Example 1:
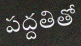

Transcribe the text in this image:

పద్దతితో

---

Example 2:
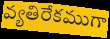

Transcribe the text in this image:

వ్యతిరేకముగా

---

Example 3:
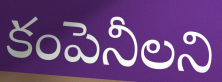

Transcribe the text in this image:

కంపెనీలని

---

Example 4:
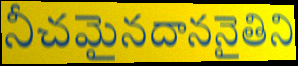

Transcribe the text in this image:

నీచమైనదాననైతిని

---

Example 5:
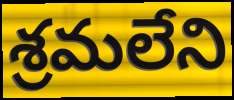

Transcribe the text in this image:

శ్రమలేని